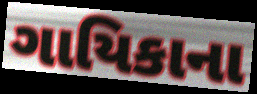
ગાયિકાના